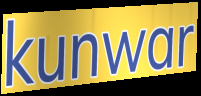
kunwar